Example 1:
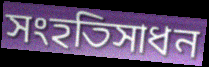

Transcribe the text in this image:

সংহতিসাধন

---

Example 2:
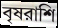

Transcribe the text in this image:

বৃষরাশি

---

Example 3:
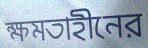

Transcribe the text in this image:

ক্ষমতাহীনের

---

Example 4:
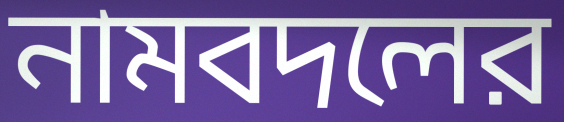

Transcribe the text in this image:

নামবদলের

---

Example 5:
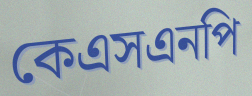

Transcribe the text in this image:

কেএসএনপি